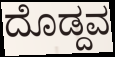
ದೊಡ್ದವ